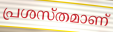
പ്രശസ്തമാണ്